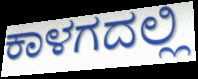
ಕಾಳಗದಲ್ಲಿ